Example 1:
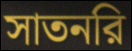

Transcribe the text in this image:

সাতনরি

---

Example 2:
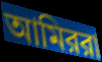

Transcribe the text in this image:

আমিররা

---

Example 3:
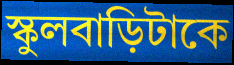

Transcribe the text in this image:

স্কুলবাড়িটাকে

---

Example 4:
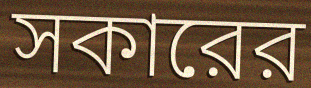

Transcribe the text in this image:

সকারের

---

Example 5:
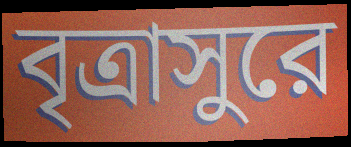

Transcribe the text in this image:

বৃত্রাসুরে